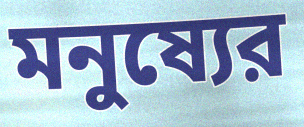
মনুষ্যের